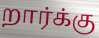
றார்க்கு